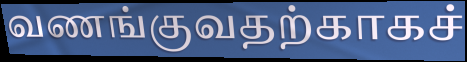
வணங்குவதற்காகச்